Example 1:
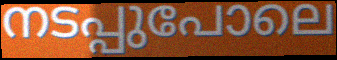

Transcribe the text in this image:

നടപ്പുപോലെ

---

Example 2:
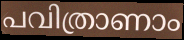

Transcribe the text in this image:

പവിത്രാണാം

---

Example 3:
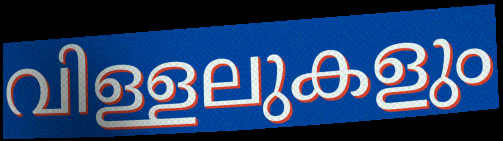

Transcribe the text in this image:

വിള്ളലുകളും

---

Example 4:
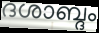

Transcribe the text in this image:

ദശാബ്ദം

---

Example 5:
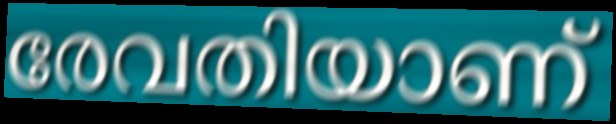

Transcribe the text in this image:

രേവതിയാണ്